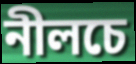
নীলচে